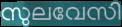
സുലവേസി